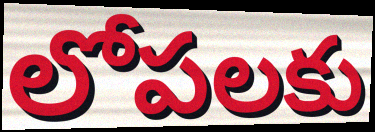
లోపలకు